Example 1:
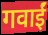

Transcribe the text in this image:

गवाईं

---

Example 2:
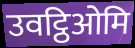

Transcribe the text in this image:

उवट्ठिओमि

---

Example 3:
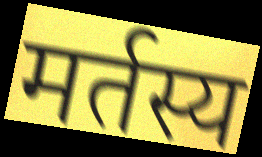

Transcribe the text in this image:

मर्तस्य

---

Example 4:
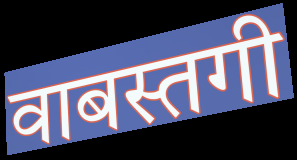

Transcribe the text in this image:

वाबस्तगी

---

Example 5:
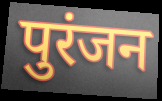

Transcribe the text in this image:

पुरंजन